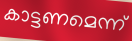
കാട്ടണമെന്ന്